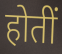
होतीं